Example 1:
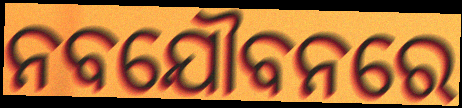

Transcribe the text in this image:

ନବଯୌବନରେ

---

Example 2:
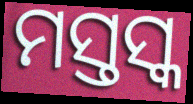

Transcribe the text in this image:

ମସ୍ତସ୍କ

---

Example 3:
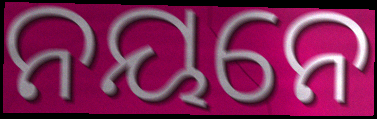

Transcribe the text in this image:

ନୟନେ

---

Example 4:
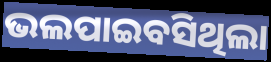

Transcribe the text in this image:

ଭଲପାଇବସିଥିଲା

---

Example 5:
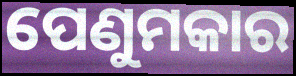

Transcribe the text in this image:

ପେଣୁମକାର